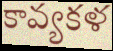
కావ్యకళ